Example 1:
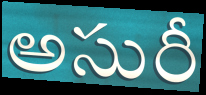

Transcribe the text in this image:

అసురీ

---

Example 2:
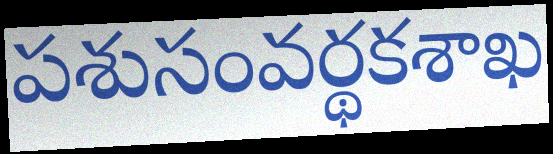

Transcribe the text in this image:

పశుసంవర్థకశాఖ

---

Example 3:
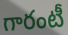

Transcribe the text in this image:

గారంటీ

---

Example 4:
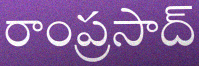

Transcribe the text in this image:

రాంప్రసాద్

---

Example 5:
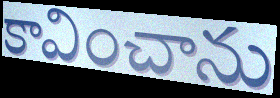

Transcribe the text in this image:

కావించాను